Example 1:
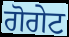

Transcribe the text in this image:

ਗੋਗੇਟ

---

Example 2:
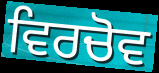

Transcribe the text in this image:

ਵਿਰਚੋਵ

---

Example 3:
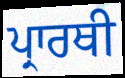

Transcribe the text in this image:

ਪ੍ਰਾਰਥੀ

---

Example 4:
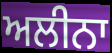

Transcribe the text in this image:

ਅਲੀਨਾ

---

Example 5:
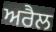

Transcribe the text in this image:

ਅਰੈਲ